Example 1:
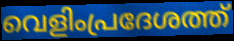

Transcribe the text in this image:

വെളിംപ്രദേശത്ത്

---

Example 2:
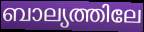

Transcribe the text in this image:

ബാല്യത്തിലേ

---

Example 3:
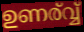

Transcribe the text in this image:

ഉണര്വ്വ്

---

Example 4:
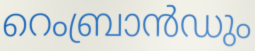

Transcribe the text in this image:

റെംബ്രാൻഡും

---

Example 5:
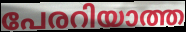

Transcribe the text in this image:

പേരറിയാത്ത